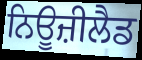
ਨਿਊਜ਼ੀਲੈਡ